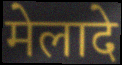
मेलादे